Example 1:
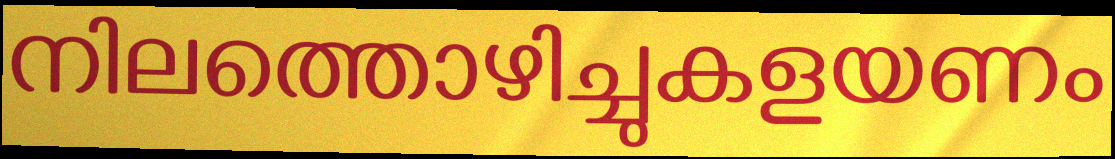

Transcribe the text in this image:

നിലത്തൊഴിച്ചുകളയണം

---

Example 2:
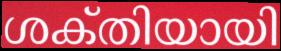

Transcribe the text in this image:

ശക്‌തിയായി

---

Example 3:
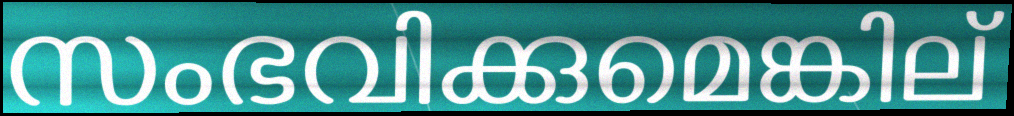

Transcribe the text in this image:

സംഭവിക്കുമെങ്കില്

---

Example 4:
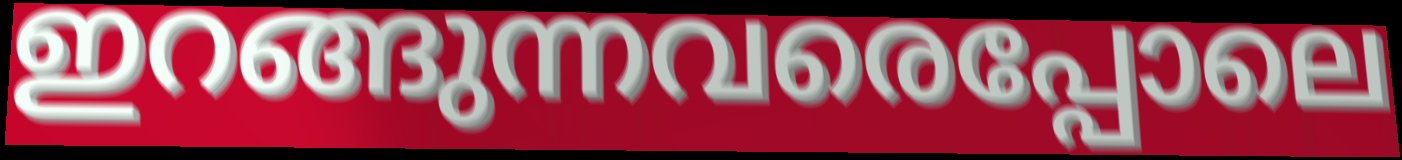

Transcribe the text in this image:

ഇറങ്ങുന്നവരെപ്പോലെ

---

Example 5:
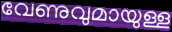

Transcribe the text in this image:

വേണുവുമായുള്ള